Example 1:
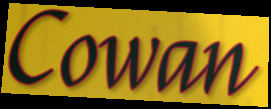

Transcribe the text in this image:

Cowan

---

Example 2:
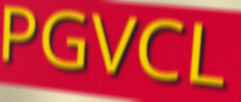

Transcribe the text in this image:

PGVCL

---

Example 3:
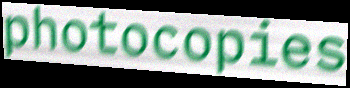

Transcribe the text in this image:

photocopies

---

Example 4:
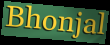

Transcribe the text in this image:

Bhonjal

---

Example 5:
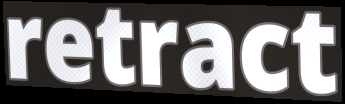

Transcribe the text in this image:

retract